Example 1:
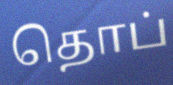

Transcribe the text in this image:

தொப்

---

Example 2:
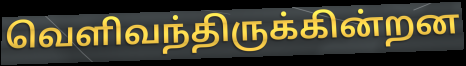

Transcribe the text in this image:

வெளிவந்திருக்கின்றன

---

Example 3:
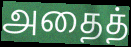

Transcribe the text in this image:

அதைத்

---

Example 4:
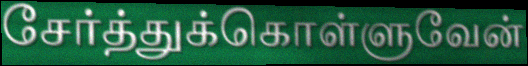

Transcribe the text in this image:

சேர்த்துக்கொள்ளுவேன்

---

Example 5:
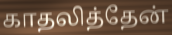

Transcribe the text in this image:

காதலித்தேன்